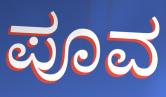
ಪೂವ